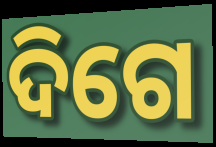
ଦିଗେ